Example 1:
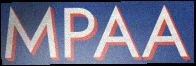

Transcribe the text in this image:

MPAA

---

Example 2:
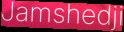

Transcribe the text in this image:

Jamshedji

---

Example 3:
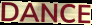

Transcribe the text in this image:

DANCE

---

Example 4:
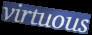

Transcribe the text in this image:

virtuous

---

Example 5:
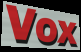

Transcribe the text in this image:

Vox